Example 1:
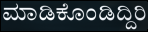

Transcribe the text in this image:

ಮಾಡಿಕೊಂಡಿದ್ದಿರಿ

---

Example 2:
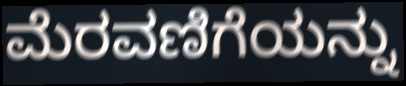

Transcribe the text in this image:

ಮೆರವಣಿಗೆಯನ್ನು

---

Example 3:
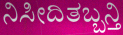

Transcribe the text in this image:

ನಿಸೀದಿತಬ್ಬನ್ತಿ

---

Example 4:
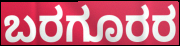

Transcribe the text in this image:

ಬರಗೂರರ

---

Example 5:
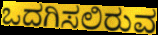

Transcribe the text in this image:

ಒದಗಿಸಲಿರುವ